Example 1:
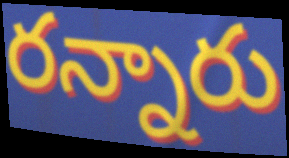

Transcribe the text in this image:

రన్నారు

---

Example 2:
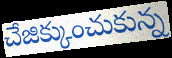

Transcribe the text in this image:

చేజిక్కుంచుకున్న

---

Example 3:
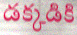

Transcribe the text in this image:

డక్కడికి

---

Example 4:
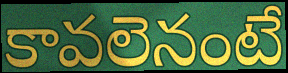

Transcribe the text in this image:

కావలెనంటే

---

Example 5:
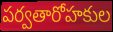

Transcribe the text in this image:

పర్వతారోహకుల